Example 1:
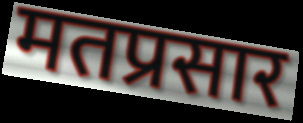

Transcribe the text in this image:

मतप्रसार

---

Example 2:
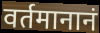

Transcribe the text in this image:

वर्तमानानं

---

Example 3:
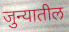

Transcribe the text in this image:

जुन्यातील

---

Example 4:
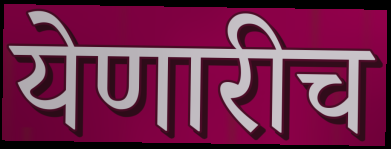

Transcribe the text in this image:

येणारीच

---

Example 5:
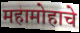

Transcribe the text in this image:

महामोहाचे